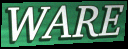
WARE